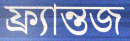
ফ্র্যান্তজ